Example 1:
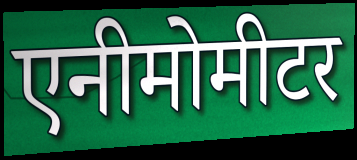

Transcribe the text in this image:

एनीमोमीटर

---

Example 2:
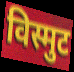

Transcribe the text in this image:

विस्मुट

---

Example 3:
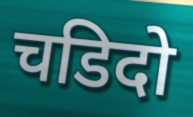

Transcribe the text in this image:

चडिदो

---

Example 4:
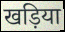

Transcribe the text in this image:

खड़िया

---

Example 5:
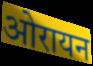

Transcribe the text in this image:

ओरायन